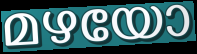
മഴയോ